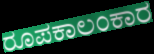
ರೂಪಕಾಲಂಕಾರ